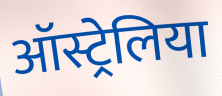
ऑस्ट्रेलिया